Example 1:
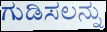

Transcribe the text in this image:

ಗುಡಿಸಲನ್ನು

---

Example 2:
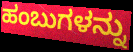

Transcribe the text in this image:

ಹಂಬುಗಳನ್ನು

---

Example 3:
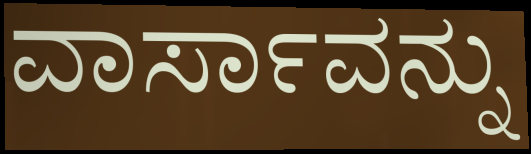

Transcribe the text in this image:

ವಾರ್ಸಾವನ್ನು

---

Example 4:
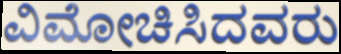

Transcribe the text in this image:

ವಿಮೋಚಿಸಿದವರು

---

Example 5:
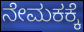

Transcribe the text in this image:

ನೇಮಕಕ್ಕೆ